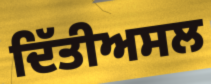
ਦਿੱਤੀਅਸਲ